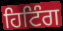
ਹਿਟਿੰਗ